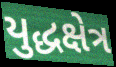
યુદ્ધક્ષેત્ર